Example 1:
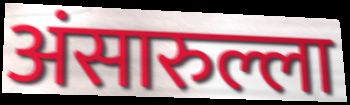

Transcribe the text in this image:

अंसारुल्ला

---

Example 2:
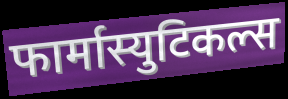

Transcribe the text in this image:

फार्मास्युटिकल्स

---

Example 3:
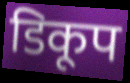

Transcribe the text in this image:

डिकूप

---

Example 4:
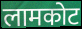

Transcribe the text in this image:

लामकोट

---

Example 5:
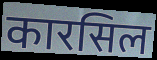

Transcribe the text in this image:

कारसिल